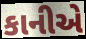
કાનીએ